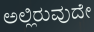
ಅಲ್ಲಿರುವುದೇ